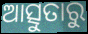
ଆତ୍ସୁତାରୁ